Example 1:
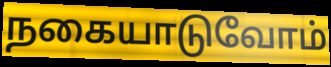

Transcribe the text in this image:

நகையாடுவோம்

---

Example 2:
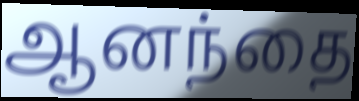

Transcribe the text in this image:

ஆனந்தை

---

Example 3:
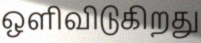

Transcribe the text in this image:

ஒளிவிடுகிறது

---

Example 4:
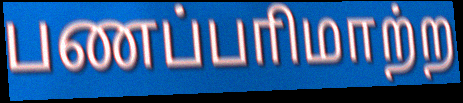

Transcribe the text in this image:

பணப்பரிமாற்ற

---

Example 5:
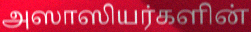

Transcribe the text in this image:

அஸாஸியர்களின்